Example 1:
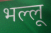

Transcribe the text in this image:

भल्लू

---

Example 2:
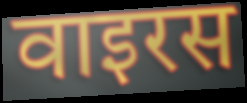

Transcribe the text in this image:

वाइरस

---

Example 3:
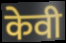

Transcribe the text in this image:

केवी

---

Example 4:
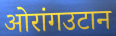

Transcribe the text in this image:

ओरांगउटान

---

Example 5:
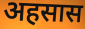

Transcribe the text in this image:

अहसास